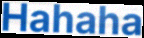
Hahaha